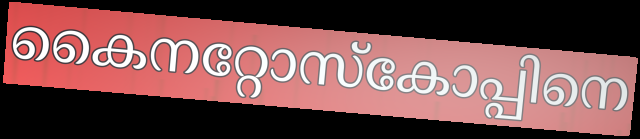
കൈനറ്റോസ്കോപ്പിനെ